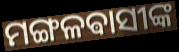
ମଙ୍ଗଳଵାସୀଙ୍କ